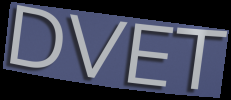
DVET